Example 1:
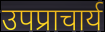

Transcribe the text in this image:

उपप्राचार्य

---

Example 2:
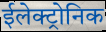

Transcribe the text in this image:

ईलेक्ट्रोनिक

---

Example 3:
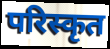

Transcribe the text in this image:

परिस्कृत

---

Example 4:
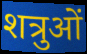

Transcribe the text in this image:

शत्रुओं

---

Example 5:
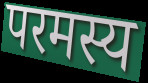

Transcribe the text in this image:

परमस्य